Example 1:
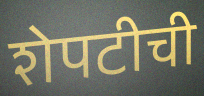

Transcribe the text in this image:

शेपटीची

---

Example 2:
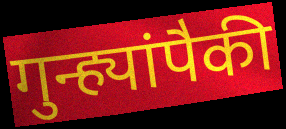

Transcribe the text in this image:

गुन्ह्यांपैकी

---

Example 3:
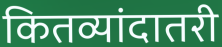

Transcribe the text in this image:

कितव्यांदातरी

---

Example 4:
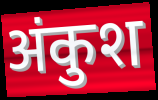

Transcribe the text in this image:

अंकुश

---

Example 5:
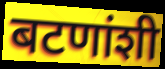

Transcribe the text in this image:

बटणांशी